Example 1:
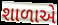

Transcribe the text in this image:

શાળાએે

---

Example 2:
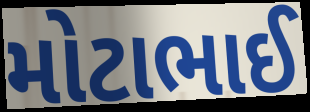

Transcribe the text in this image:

મોટાભાઈ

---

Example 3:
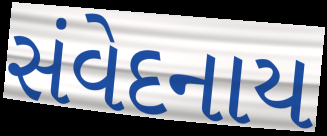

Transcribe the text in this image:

સંવેદનાય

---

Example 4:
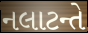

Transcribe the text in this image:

નલાટન્તે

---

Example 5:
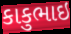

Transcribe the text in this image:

કાકુભાઇ